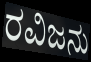
ರವಿಜನು